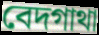
বেদগাথা